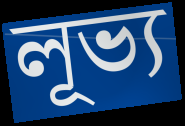
লূভ্য